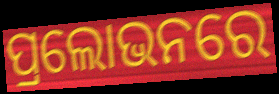
ପ୍ରଲୋଭନରେ